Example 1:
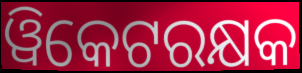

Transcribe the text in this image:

ୱିକେଟରକ୍ଷକ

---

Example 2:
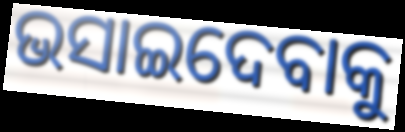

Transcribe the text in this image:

ଭସାଇଦେବାକୁ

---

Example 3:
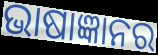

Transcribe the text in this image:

ଭାଷାଜ୍ଞାନର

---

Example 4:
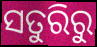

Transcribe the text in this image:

ସତୁରିରୁ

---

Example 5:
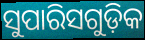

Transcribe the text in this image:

ସୁପାରିସଗୁଡ଼ିକ